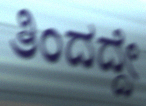
ತಿಂದದ್ದೇ